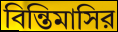
বিন্তিমাসির